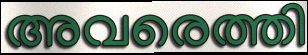
അവരെത്തി